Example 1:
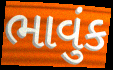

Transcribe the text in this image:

ભાવુંક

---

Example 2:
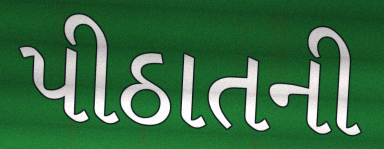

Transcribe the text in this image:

પીઠાતની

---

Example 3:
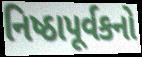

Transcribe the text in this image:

નિષ્ઠાપૂર્વકનો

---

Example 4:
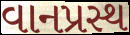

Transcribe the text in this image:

વાનપ્રસ્થ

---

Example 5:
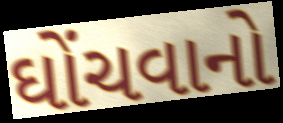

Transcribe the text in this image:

ઘોંચવાનો